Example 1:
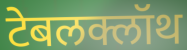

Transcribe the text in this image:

टेबलक्लॉथ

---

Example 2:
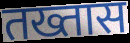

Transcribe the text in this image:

तख्तास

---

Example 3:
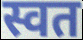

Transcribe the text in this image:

स्वत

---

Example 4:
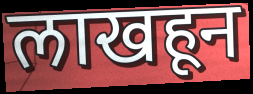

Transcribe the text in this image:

लाखहून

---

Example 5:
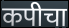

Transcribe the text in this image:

कपीचा